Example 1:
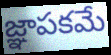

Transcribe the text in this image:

జ్ఞాపకమే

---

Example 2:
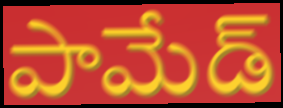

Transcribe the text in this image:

పామేడ్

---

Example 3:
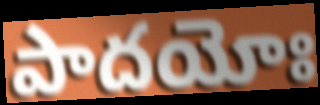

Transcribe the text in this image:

పాదయోః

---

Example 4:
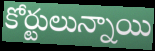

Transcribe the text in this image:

కోర్టులున్నాయి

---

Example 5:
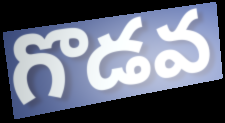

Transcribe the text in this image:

గొడవ